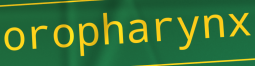
oropharynx